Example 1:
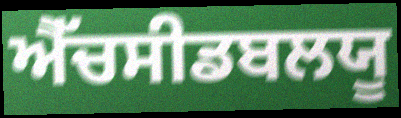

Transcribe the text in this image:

ਐੱਚਸੀਡਬਲਯੂ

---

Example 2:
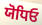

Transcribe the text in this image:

ਯੋਧਿਓ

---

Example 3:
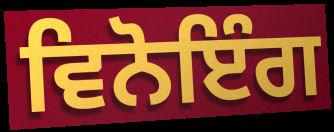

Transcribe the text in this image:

ਵਿਨੋਇੰਗ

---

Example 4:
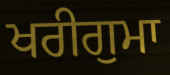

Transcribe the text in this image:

ਖਰੀਗੁਮਾ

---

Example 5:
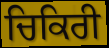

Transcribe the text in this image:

ਚਿਕਿਰੀ